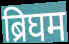
ब्रिघम